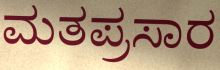
ಮತಪ್ರಸಾರ